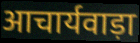
आचार्यवाड़ा